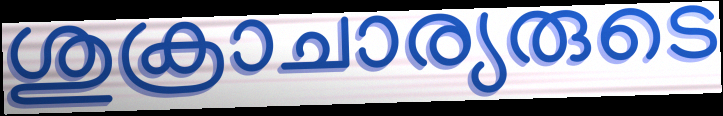
ശുക്രാചാര്യരുടെ